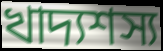
খাদ্যশস্য